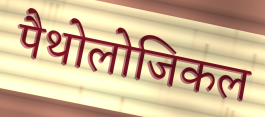
पैथोलोजिकल